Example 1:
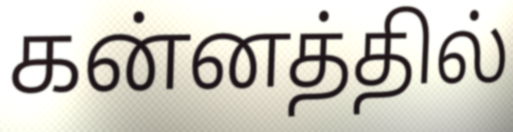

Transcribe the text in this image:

கன்னத்தில்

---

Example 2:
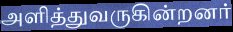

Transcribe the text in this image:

அளித்துவருகின்றனர்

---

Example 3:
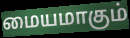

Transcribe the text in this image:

மையமாகும்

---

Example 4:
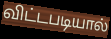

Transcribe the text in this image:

விட்டபடியால்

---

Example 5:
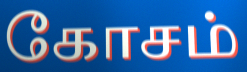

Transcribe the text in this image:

கோசம்